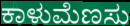
ಕಾಳುಮೆಣಸು